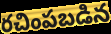
రచింపబడిన